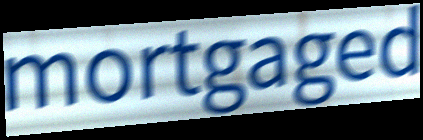
mortgaged